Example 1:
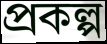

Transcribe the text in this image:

প্রকল্প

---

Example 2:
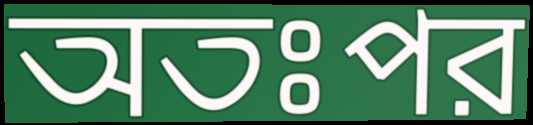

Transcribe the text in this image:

অতঃপর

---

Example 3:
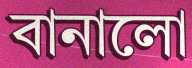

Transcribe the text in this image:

বানালো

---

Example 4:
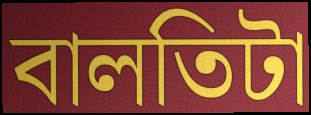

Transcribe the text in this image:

বালতিটা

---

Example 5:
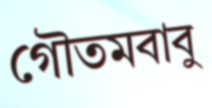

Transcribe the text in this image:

গৌতমবাবু